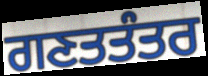
ਗਣਤਤੰਤਰ